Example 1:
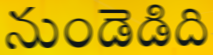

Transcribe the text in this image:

నుండెడిది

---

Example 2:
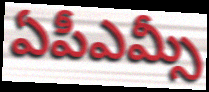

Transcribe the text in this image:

ఏపీఎమ్సీ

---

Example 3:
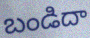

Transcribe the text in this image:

బండిదా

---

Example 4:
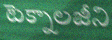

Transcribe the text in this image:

టెక్నాలజీని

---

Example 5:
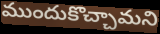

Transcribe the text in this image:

ముందుకొచ్చామని